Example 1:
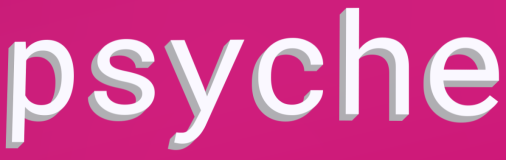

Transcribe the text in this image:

psyche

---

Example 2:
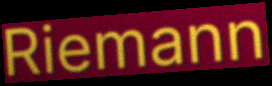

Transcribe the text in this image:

Riemann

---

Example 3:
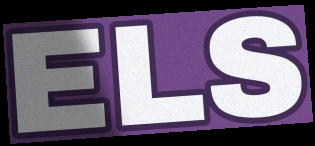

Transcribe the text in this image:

ELS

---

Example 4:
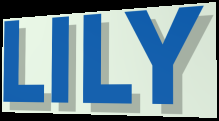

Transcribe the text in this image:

LILY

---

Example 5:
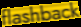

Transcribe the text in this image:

flashback